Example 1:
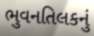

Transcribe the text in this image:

ભુવનતિલકનું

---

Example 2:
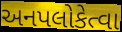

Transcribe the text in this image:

અનપલોકેત્વા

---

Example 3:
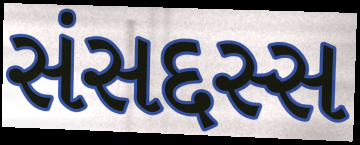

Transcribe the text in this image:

સંસદ્દસ્સ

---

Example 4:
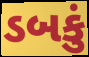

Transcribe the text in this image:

ડબકું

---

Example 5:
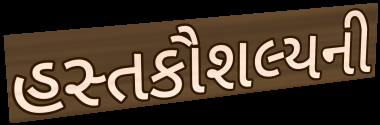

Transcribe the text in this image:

હસ્તકૌશલ્યની